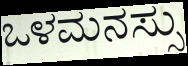
ಒಳಮನಸ್ಸು